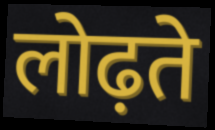
लोढ़ते